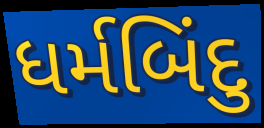
ધર્મબિંદુ